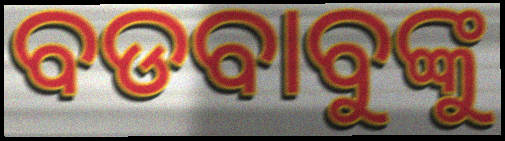
ବଡବାବୁଙ୍କୁ